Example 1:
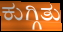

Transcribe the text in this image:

ಕುಗ್ಗಿತು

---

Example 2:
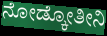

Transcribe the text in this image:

ನೋಡ್ಕೋತೀನಿ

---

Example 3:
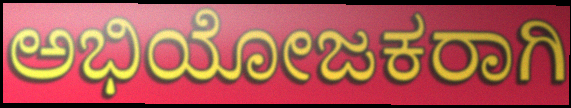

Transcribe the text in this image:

ಅಭಿಯೋಜಕರಾಗಿ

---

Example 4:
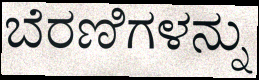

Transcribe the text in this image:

ಬೆರಣಿಗಳನ್ನು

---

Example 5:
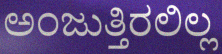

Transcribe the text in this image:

ಅಂಜುತ್ತಿರಲಿಲ್ಲ